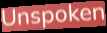
Unspoken